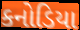
કનોડિયા